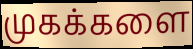
முகக்களை